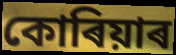
কোৰিয়াৰ